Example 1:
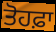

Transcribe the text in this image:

ਤੋਹਫ਼ਾ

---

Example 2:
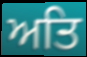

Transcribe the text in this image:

ਅਤਿ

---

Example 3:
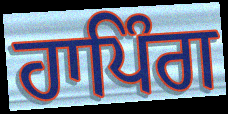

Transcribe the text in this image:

ਹਾਪਿੰਗ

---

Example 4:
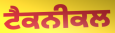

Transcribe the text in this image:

ਟੈਕਨੀਕਲ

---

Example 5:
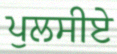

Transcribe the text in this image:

ਪੁਲਸੀਏ